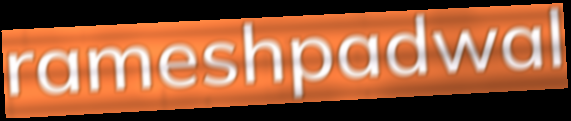
rameshpadwal